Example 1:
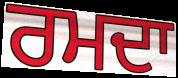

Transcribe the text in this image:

ਰਮਦਾ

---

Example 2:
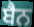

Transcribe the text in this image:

ਬੈਨ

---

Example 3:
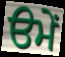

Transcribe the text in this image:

ੳਮੇਂ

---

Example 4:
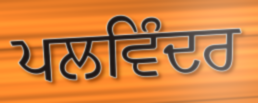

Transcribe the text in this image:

ਪਲਵਿੰਦਰ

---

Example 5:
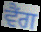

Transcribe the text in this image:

ਵੈਂਗ